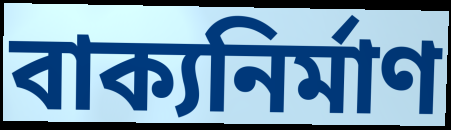
বাক্যনির্মাণ